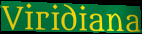
Viridiana